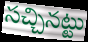
సచ్చినట్టు